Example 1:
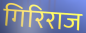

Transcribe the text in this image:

गिरिराज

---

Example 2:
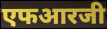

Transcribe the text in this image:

एफआरजी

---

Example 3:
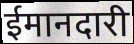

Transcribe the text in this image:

ईमानदारी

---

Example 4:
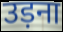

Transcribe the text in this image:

उड़ना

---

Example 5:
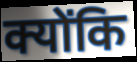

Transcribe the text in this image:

क्योंकि